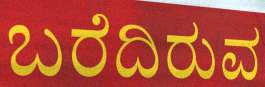
ಬರೆದಿರುವ